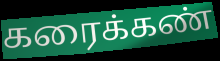
கரைக்கண்